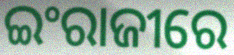
ଇଂରାଜୀରେ